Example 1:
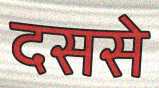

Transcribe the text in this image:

दससे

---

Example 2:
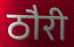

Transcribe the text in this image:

ठौरी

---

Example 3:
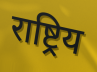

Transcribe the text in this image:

राष्ट्रिय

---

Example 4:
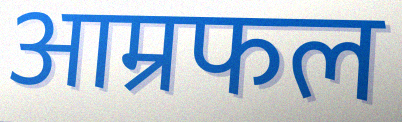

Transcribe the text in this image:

आम्रफल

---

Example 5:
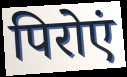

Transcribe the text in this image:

पिरोएं